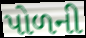
પોળની